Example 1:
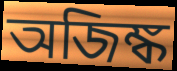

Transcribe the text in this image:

অজিঙ্ক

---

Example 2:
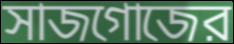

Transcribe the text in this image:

সাজগোজের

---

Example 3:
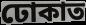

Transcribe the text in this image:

ঢোকাত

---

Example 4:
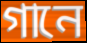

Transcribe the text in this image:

গানে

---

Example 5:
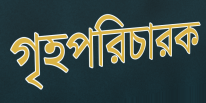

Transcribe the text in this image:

গৃহপরিচারক